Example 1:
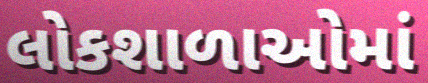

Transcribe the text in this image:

લોકશાળાઓમાં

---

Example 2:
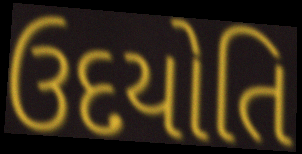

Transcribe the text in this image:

ઉદયોતિ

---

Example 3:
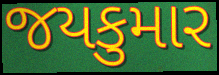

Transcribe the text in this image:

જયકુમાર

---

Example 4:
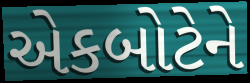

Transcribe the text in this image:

એકબોટેને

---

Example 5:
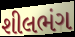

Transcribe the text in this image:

શીલભંગ